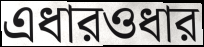
এধারওধার